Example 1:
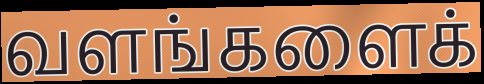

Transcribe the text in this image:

வளங்களைக்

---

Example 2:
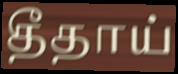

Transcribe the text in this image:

தீதாய்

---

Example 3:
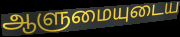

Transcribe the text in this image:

ஆளுமையுடைய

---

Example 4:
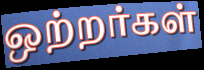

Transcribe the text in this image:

ஒற்றர்கள்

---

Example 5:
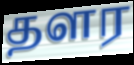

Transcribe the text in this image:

தளர